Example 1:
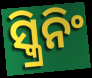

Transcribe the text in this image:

ସ୍କ୍ରିନିଂ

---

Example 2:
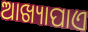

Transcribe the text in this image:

ଆଖ୍ୟାପାଏ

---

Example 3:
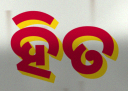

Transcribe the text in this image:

ହିତ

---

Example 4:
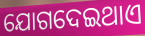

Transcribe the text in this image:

ଯୋଗଦେଇଥାଏ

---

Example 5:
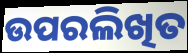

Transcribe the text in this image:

ଉପରଲିଖିତ